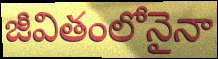
జీవితంలోనైనా